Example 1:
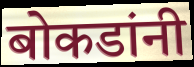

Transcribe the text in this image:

बोकडांनी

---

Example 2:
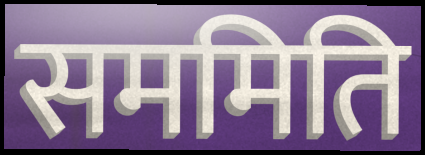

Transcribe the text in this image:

सममिति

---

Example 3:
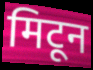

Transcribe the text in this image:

मिटून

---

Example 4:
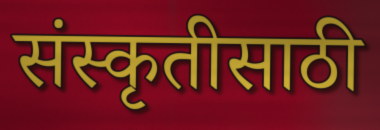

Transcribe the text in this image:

संस्कृतीसाठी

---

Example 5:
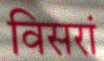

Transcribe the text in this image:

विसरां